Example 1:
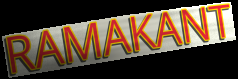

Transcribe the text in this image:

RAMAKANT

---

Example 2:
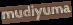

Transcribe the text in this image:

mudiyuma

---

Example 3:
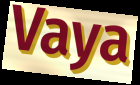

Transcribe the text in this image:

Vaya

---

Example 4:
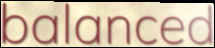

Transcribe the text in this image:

balanced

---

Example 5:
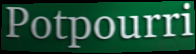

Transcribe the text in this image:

Potpourri